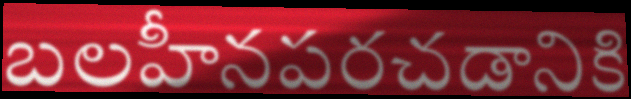
బలహీనపరచడానికి